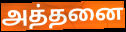
அத்தனை